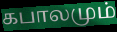
கபாலமும்